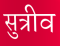
सुत्रीव